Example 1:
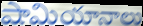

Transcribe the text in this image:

షామియానాలు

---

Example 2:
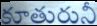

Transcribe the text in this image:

కూతురునీ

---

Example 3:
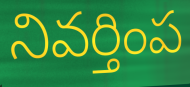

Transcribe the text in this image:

నివర్తింప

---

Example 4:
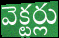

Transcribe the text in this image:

వెక్టర్లు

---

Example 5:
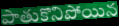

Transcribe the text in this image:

పాతుకొనిపోయిన